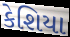
કેશિયા